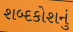
શબ્દકોશનું